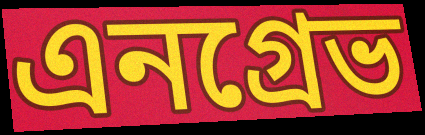
এনগ্রেভ